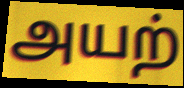
அயற்